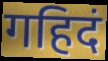
गहिदं